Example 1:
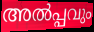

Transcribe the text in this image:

അൽപ്പവും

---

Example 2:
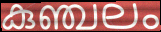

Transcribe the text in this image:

കുഞ്ചലം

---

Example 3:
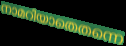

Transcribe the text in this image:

നാമറിയാതെതന്നെ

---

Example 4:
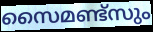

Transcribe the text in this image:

സൈമണ്ട്സും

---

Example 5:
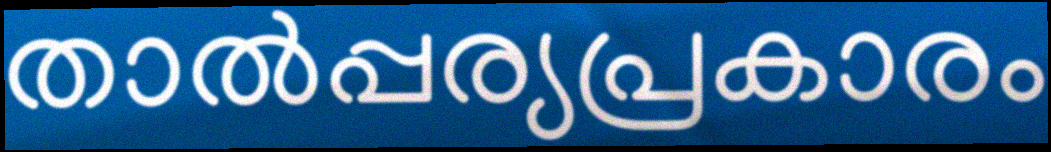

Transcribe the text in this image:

താൽപ്പര്യപ്രകാരം